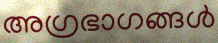
അഗ്രഭാഗങ്ങൾ